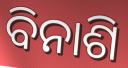
ବିନାଶି